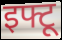
इफ्टू